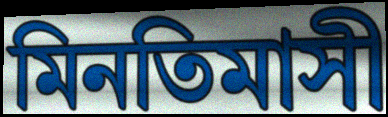
মিনতিমাসী